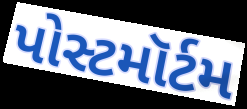
પોસ્ટમૉર્ટમ